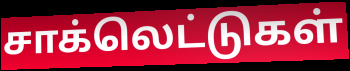
சாக்லெட்டுகள்